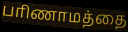
பரிணாமத்தை